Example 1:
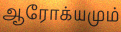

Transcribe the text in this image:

ஆரோக்யமும்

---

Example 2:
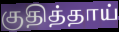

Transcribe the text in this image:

குதித்தாய்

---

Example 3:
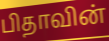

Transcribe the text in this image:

பிதாவின்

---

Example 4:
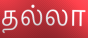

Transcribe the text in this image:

தல்லா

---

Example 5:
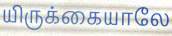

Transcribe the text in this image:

யிருக்கையாலே